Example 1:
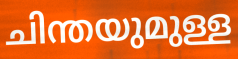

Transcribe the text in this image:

ചിന്തയുമുള്ള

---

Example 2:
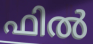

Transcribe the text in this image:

ഫിൽ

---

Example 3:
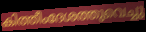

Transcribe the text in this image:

കിത്തീംദേശത്തുവെച്ചു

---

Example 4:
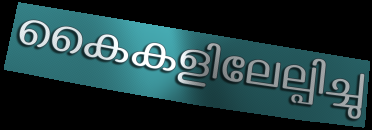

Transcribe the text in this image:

കൈകളിലേല്പിച്ചു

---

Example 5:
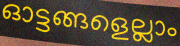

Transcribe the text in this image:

ഓട്ടങ്ങളെല്ലാം